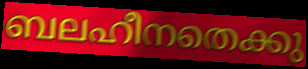
ബലഹീനതെക്കു